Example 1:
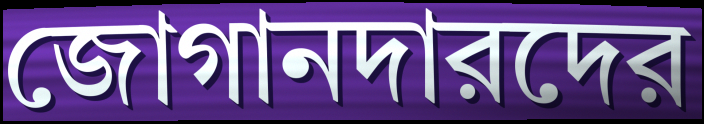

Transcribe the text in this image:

জোগানদারদের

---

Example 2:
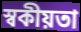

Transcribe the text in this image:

স্বকীয়তা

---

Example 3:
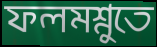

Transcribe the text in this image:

ফলমশ্নুতে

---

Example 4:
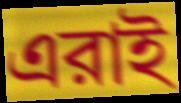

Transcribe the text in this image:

এরাই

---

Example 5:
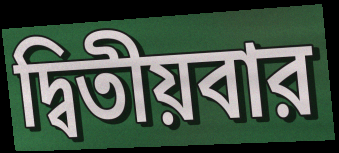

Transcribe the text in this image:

দ্বিতীয়বার